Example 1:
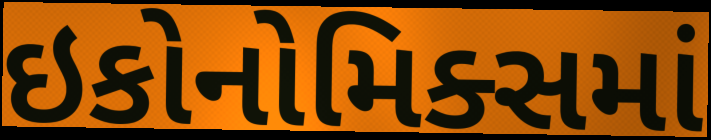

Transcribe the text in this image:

ઇકોનોમિક્સમાં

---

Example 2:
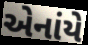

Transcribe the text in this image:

એનાંયે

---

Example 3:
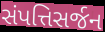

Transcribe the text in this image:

સંપત્તિસર્જન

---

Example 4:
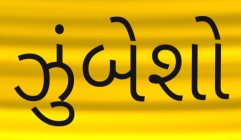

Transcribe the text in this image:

ઝુંબેશો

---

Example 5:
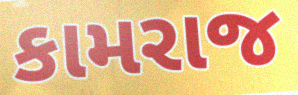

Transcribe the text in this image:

કામરાજ